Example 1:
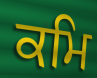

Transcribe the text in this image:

ਕਮਿ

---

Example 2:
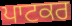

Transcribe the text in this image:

ਪਾਟਕਰ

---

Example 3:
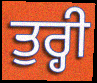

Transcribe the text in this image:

ਤੁਰ੍ਹੀ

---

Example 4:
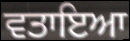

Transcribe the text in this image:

ਵਤਾਇਆ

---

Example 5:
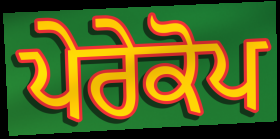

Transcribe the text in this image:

ਪੇਰੇਕੋਪ